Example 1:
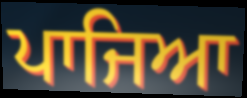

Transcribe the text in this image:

ਪਾਜਿਆ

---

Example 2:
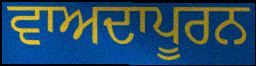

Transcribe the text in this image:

ਵਾਅਦਾਪੂਰਨ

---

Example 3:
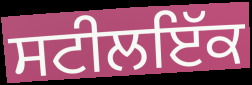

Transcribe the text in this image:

ਸਟੀਲਇੱਕ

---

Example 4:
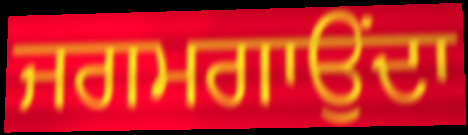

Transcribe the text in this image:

ਜਗਮਗਾਉਂਦਾ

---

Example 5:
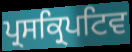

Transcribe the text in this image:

ਪ੍ਰਸਕ੍ਰਿਪਟਿਵ